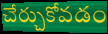
చేర్చుకోవడం